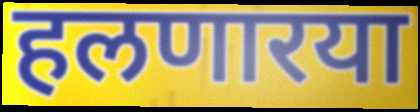
हलणारया